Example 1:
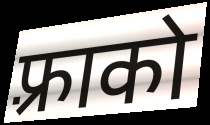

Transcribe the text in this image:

फ़्राको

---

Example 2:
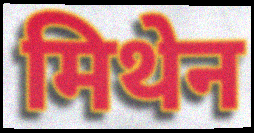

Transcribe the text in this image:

मिथेन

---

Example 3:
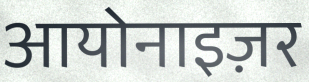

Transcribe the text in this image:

आयोनाइज़र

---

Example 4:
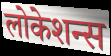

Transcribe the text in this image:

लोकेशन्स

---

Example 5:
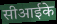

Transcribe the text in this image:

सीआईके